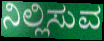
ನಿಲ್ಲಿಸುವ